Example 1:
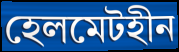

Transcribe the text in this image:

হেলমেটহীন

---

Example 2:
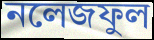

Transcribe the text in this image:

নলেজফুল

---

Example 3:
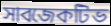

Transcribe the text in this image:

সাবজেকটিভ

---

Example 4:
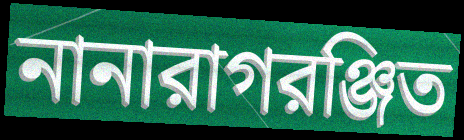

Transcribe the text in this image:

নানারাগরঞ্জিত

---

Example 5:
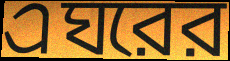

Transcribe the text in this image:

এঘরের